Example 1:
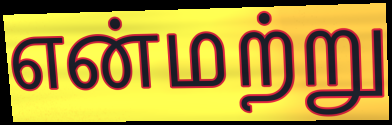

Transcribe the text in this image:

என்மற்று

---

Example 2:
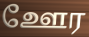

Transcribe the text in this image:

ஊேர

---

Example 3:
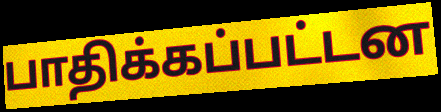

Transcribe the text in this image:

பாதிக்கப்பட்டன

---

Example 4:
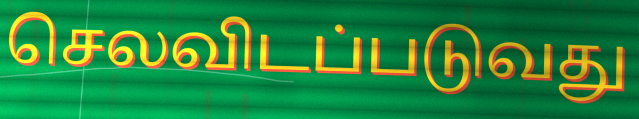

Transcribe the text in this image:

செலவிடப்படுவது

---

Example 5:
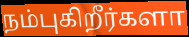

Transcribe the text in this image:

நம்புகிறீர்களா